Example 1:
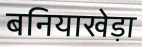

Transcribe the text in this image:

बनियाखेड़ा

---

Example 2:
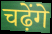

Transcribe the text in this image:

चढ़ेंगे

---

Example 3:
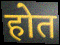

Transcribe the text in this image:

होत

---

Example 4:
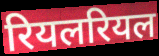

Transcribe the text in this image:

रियलरियल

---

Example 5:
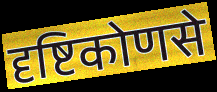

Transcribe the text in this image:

दृष्टिकोणसे